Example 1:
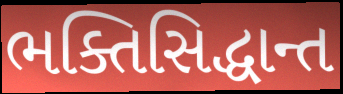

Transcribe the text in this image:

ભક્તિસિદ્ધાન્ત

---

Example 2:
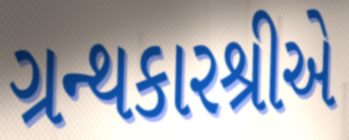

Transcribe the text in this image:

ગ્રન્થકારશ્રીએ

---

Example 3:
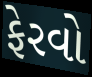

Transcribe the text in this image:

ફેરવો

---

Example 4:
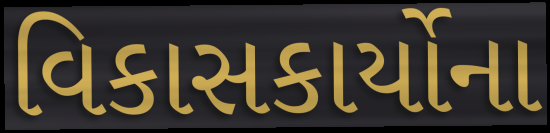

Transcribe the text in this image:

વિકાસકાર્યોના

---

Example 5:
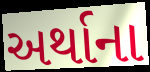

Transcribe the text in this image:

અર્થાના